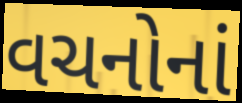
વચનોનાં